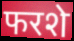
फरशे